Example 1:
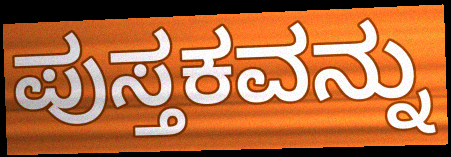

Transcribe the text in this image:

ಪುಸ್ತಕವನ್ನು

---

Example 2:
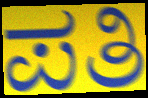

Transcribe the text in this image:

ಪತಿ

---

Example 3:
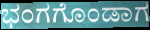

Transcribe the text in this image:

ಭಂಗಗೊಂಡಾಗ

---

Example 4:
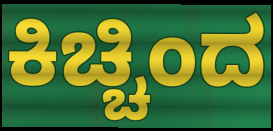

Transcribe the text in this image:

ಕಿಚ್ಚಿಂದ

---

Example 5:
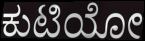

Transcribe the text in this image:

ಕುಟಿಯೋ